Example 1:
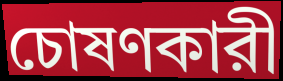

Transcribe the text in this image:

চোষণকারী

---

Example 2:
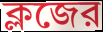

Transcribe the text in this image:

ক্লজের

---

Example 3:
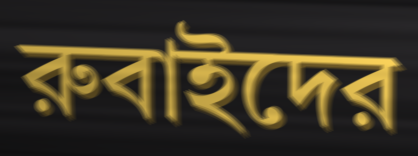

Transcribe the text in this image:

রুবাইদের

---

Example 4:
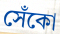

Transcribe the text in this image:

সেঁকো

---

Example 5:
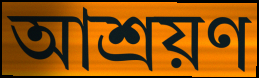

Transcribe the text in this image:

আশ্রয়ণ